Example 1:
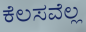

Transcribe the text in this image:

ಕೆಲಸವೆಲ್ಲ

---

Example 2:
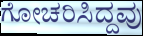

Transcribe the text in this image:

ಗೋಚರಿಸಿದ್ದವು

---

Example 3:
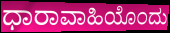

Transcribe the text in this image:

ಧಾರಾವಾಹಿಯೊಂದು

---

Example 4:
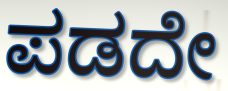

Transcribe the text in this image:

ಪಡದೇ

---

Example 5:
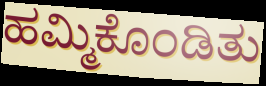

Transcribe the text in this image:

ಹಮ್ಮಿಕೊಂಡಿತು